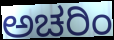
ಅಚರಿಂ